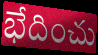
భేదించు